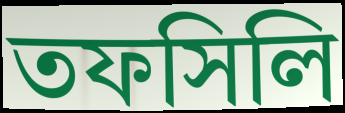
তফসিলি